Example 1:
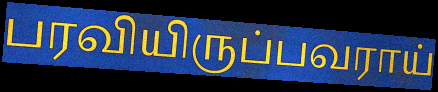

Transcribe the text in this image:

பரவியிருப்பவராய்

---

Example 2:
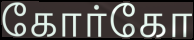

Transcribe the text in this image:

கோர்கோ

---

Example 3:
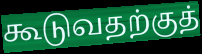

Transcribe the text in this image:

கூடுவதற்குத்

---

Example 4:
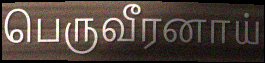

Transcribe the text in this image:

பெருவீரனாய்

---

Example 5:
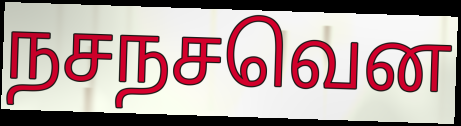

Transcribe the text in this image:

நசநசவென